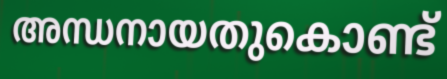
അന്ധനായതുകൊണ്ട്